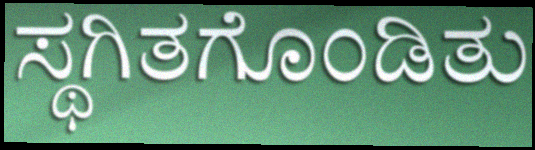
ಸ್ಥಗಿತಗೊಂಡಿತು